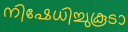
നിഷേധിച്ചുകൂടാ